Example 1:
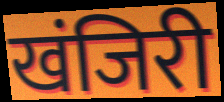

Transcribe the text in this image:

खंजिरी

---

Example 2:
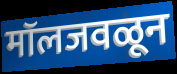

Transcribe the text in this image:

मॉलजवळून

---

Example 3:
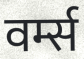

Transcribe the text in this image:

वर्म्स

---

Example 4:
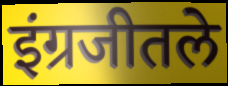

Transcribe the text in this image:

इंग्रजीतले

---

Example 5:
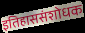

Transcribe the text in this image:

इतिहाससंशोधक